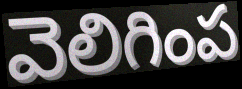
వెలిగింప